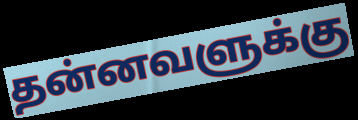
தன்னவளுக்கு